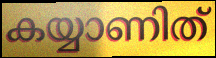
കയ്യാണിത്